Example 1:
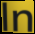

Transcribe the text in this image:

In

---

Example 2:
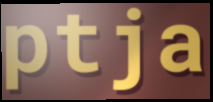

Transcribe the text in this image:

ptja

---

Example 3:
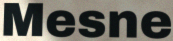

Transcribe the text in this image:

Mesne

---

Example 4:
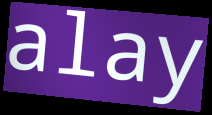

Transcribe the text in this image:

alay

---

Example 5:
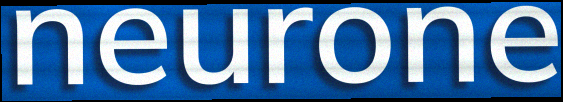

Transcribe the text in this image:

neurone